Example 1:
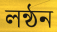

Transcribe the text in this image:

লন্ঠন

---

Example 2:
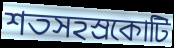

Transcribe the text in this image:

শতসহস্রকোটি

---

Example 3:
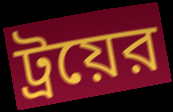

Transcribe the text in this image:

ট্রয়ের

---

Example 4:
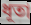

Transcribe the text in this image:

ধূতা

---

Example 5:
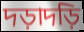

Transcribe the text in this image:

দড়াদড়ি